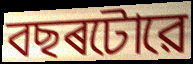
বছৰটোৱে